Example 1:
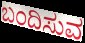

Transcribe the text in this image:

ಬಂದಿಸುವ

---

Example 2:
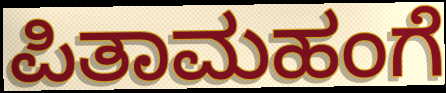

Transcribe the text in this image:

ಪಿತಾಮಹಂಗೆ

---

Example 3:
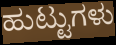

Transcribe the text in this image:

ಹುಟ್ಟುಗಳು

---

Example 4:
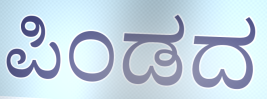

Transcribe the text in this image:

ಪಿಂಡದ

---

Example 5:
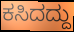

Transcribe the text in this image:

ಕಸಿದದ್ದು